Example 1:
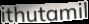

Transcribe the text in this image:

ithutamil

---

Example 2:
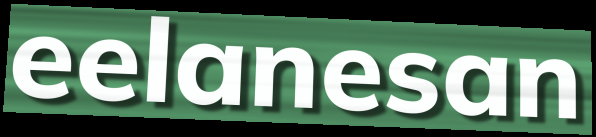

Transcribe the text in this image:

eelanesan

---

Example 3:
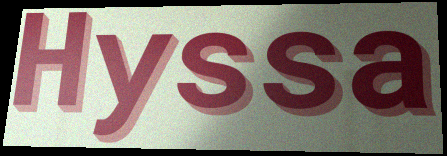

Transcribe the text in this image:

Hyssa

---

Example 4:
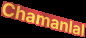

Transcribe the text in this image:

Chamanlal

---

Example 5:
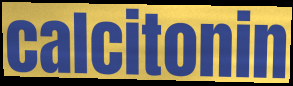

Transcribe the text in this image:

calcitonin